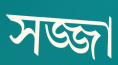
সজ্জা